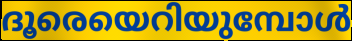
ദൂരെയെറിയുമ്പോൾ